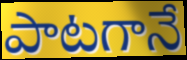
పాటగానే